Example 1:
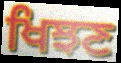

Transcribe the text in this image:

ਖਿਝਣ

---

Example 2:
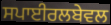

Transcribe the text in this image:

ਸਪਾਈਰਲਬੇਵਲ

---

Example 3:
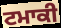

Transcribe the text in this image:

ਟਮਾਕੀ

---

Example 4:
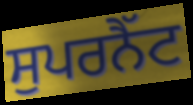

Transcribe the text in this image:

ਸੁਪਰਨੈੱਟ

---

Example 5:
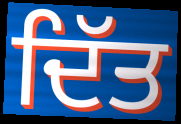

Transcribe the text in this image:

ਦਿੱਤ